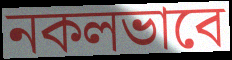
নকলভাবে